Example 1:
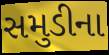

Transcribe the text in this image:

સમુડીના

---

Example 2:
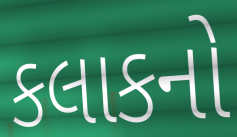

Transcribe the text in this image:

કલાકનો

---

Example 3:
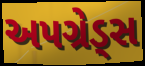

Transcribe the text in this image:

અપગ્રેડ્સ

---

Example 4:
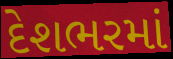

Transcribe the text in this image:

દેશભરમાં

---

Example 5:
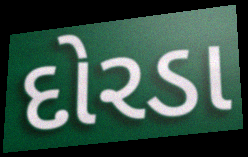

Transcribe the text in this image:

દોરડા